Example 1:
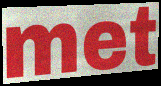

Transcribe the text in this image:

met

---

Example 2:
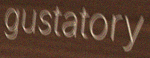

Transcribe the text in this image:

gustatory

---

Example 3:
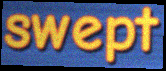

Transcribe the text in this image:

swept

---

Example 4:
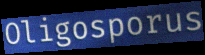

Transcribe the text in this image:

Oligosporus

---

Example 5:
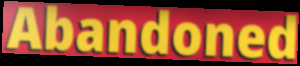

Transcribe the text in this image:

Abandoned